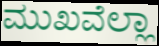
ಮುಖವೆಲ್ಲಾ